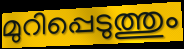
മുറിപ്പെടുത്തും